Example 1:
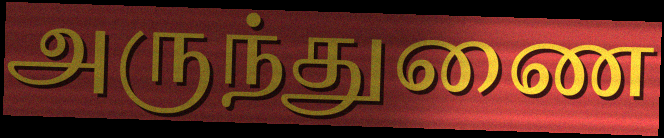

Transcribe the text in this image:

அருந்துணை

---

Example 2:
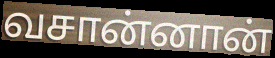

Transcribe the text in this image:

வசான்னான்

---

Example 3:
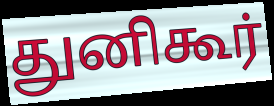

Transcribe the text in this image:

துனிகூர்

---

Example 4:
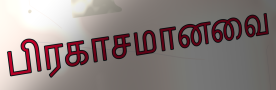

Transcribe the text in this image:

பிரகாசமானவை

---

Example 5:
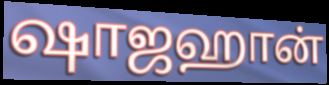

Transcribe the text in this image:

ஷாஜஹான்